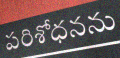
పరిశోధనను